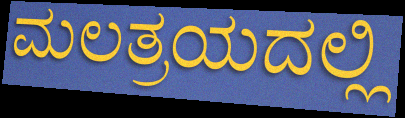
ಮಲತ್ರಯದಲ್ಲಿ